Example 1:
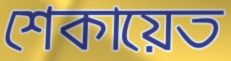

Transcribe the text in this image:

শেকায়েত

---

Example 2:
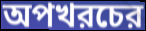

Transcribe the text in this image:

অপখরচের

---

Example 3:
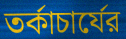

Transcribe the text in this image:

তর্কাচার্যের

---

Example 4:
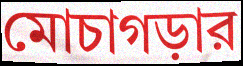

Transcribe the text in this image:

মোচাগড়ার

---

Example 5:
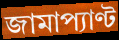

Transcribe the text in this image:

জামাপ্যাণ্ট